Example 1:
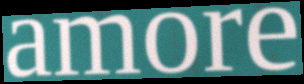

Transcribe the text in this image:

amore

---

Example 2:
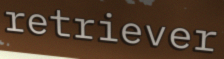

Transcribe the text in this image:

retriever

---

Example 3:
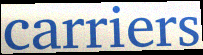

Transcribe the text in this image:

carriers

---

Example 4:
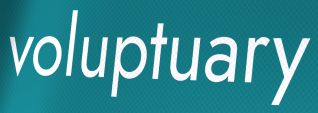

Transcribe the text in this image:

voluptuary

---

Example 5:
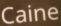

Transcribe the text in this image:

Caine